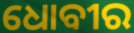
ଧୋବୀର